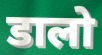
डालो